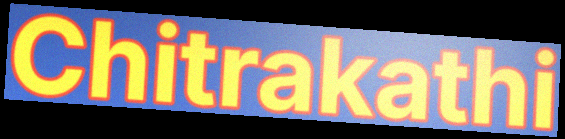
Chitrakathi